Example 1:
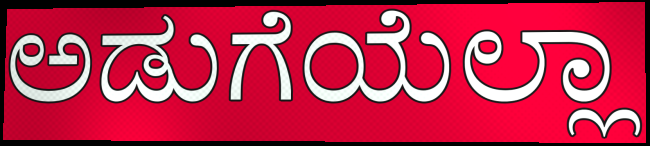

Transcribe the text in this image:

ಅಡುಗೆಯೆಲ್ಲಾ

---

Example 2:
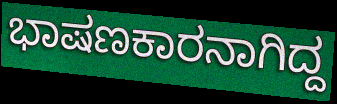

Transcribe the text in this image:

ಭಾಷಣಕಾರನಾಗಿದ್ದ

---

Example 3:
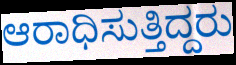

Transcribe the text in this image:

ಆರಾಧಿಸುತ್ತಿದ್ದರು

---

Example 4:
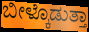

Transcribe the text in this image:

ಬೀಳ್ಕೊಡುತ್ತಾ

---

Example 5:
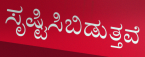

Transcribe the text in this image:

ಸೃಷ್ಟಿಸಿಬಿಡುತ್ತವೆ